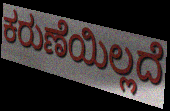
ಕರುಣೆಯಿಲ್ಲದೆ